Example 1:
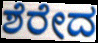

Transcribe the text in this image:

ಶೆರೇದ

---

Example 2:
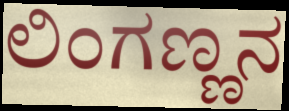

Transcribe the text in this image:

ಲಿಂಗಣ್ಣನ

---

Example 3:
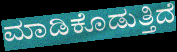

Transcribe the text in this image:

ಮಾಡಿಕೊಡುತ್ತಿದೆ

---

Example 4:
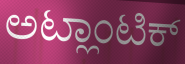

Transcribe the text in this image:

ಅಟ್ಲಾಂಟಿಕ್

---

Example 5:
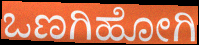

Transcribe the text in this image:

ಒಣಗಿಹೋಗಿ